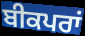
ਬੀਕਪਰਾਂ